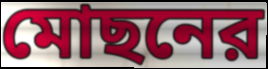
মোছনের